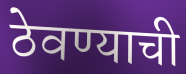
ठेवण्याची